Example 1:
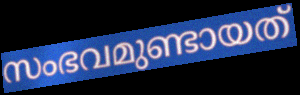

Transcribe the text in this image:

സംഭവമുണ്ടായത്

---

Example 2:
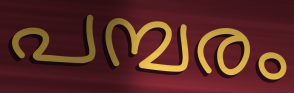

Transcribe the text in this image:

പമ്പരം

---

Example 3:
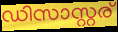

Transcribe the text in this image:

ഡിസാസ്റ്റര്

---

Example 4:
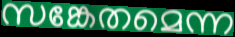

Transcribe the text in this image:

സങ്കേതമെന്ന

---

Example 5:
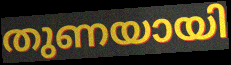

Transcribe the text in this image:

തുണയായി